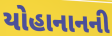
યોહાનાનની